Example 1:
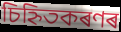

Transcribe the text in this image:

চিহ্নিতকৰণৰ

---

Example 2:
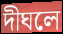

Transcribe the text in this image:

দীঘলে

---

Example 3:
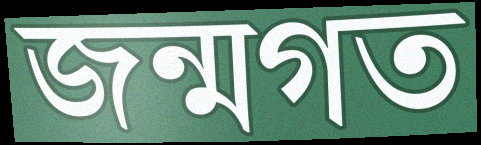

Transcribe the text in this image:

জন্মগত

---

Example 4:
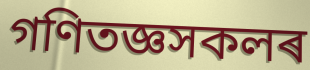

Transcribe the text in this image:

গণিতজ্ঞসকলৰ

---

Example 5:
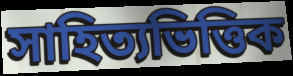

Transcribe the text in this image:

সাহিত্যভিত্তিক